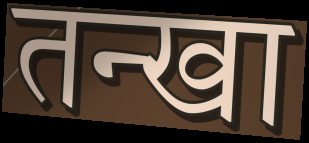
तन्खा